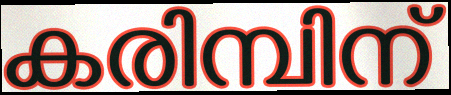
കരിമ്പിന്